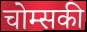
चोम्सकी